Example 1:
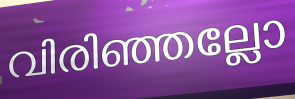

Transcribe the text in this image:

വിരിഞ്ഞല്ലോ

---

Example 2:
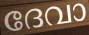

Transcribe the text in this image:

ദേവാ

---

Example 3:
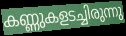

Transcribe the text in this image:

കണ്ണുകളടച്ചിരുന്നു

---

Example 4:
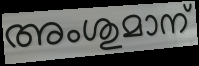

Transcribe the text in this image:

അംശുമാന്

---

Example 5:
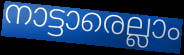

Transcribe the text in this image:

നാട്ടാരെല്ലാം